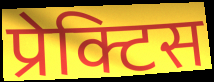
प्रेक्टिस